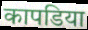
कापडिया